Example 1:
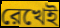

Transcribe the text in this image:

রেখেই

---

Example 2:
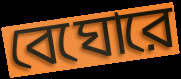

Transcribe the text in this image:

বেঘোরে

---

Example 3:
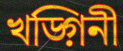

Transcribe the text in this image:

খড়্গিনী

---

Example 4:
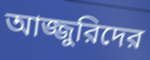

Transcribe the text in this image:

আজ্জুরিদের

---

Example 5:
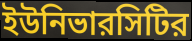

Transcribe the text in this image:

ইউনিভারসিটির